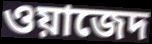
ওয়াজেদ